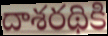
దాశరథికి